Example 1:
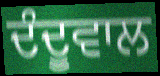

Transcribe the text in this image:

ਦੰਦੂਵਾਲ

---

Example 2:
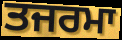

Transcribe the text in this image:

ਤਜਰਮਾ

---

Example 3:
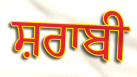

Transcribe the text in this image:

ਸ਼ਰਾਬੀ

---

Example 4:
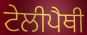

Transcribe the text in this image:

ਟੇਲੀਪੈਥੀ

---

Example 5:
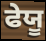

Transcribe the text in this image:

ਫੇਯੂ